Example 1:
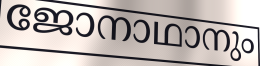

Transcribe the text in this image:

ജോനാഥാനും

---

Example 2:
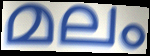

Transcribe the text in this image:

മലം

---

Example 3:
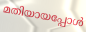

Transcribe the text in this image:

മതിയായപ്പോൾ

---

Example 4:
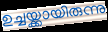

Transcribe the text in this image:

ഉച്ചയ്ക്കായിരുന്നു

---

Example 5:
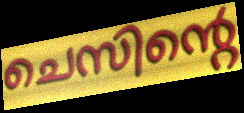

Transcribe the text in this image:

ചെസിന്റെ